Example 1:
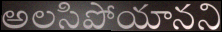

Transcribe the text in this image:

అలసిపోయానని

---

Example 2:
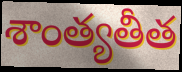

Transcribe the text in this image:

శాంత్యతీత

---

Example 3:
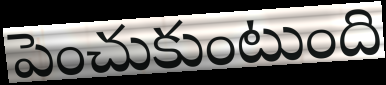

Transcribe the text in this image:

పెంచుకుంటుంది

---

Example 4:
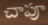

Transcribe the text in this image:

చాపూ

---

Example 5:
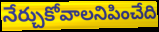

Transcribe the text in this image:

నేర్చుకోవాలనిపించేది